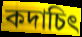
কদাচিৎ